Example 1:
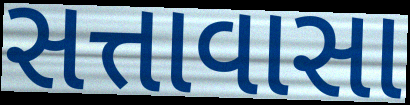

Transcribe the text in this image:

સત્તાવાસા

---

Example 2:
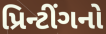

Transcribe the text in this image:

પ્રિન્ટીંગનો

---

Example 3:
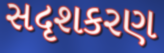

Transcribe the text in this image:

સદૃશકરણ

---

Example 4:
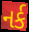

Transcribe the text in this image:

નર્ક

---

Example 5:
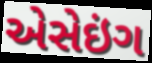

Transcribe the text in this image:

એસેઇંગ